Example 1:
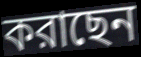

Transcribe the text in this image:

করাছেন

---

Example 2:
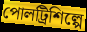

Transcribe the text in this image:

পোলট্রিশিল্পে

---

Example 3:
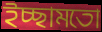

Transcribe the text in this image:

ইচ্ছামতো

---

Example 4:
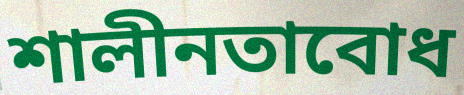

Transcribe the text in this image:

শালীনতাবোধ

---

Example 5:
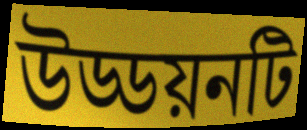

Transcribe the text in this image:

উড্ডয়নটি